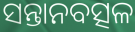
ସନ୍ତାନବତ୍ସଳ